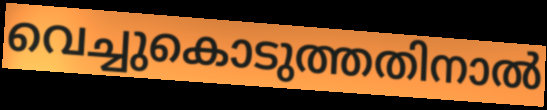
വെച്ചുകൊടുത്തതിനാൽ